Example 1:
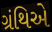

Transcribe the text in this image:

ગ્રંથિએ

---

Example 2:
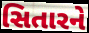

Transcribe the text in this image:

સિતારને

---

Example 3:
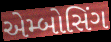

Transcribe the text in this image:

એમ્બોસિંગ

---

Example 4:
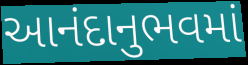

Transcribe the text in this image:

આનંદાનુભવમાં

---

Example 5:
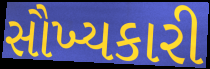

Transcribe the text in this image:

સૌખ્યકારી